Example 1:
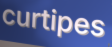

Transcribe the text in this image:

curtipes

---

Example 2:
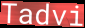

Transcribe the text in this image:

Tadvi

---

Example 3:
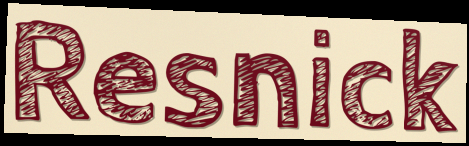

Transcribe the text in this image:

Resnick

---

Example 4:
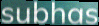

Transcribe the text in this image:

subhas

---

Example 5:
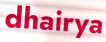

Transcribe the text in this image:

dhairya